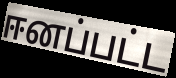
ஈனப்பட்ட